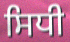
ਸਿਧੀ